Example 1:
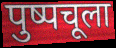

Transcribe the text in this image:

पुष्पचूला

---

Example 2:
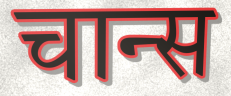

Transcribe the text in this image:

चान्स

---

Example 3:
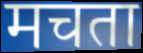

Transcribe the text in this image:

मचता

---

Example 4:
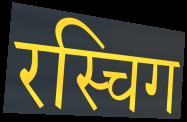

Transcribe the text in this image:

रस्चिग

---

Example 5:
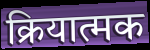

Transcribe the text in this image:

क्रियात्मक